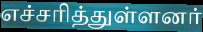
எச்சரித்துள்ளனர்